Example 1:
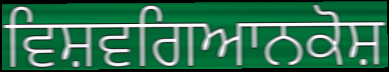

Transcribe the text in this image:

ਵਿਸ਼ਵਗਿਆਨਕੋਸ਼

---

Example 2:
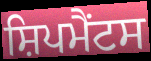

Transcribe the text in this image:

ਸ਼ਿਪਮੈਂਟਸ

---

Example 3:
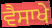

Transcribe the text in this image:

ਵੈਸਾਖੇ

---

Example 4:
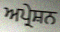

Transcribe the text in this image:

ਅਪ੍ਰੇਸ਼ਨ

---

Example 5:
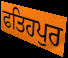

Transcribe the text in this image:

ਫਤਿਹਪੁਰ